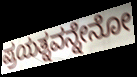
ಪ್ರಯತ್ನವನ್ನೇನೋ